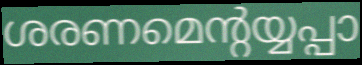
ശരണമെന്റയ്യപ്പാ